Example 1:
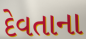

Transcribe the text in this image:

દેવતાના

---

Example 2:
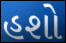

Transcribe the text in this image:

હશો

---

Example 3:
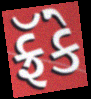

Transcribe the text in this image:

ફ્રૅંકે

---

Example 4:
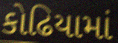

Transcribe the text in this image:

કોઢિયામાં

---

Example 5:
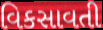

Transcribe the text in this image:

વિકસાવતી